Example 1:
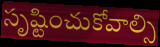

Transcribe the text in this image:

సృష్టించుకోవాల్సి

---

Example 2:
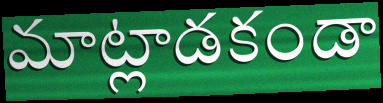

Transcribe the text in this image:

మాట్లాడకండా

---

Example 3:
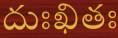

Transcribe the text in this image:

దుఃఖితః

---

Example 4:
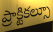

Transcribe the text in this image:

ప్రాక్టికల్సూ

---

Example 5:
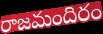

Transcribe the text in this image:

రాజమందిరం